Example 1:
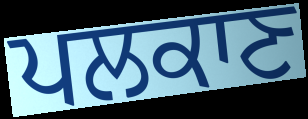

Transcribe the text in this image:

ਪਲਕਾਣ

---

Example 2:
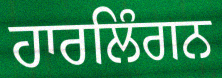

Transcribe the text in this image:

ਹਾਰਲਿੰਗਨ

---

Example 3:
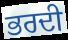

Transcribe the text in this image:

ਭਰਦੀ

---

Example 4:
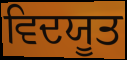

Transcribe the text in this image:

ਵਿਦਯੂਤ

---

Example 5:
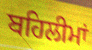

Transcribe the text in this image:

ਬਹਿਲੀਮਾਂ